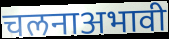
चलनाअभावी